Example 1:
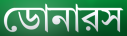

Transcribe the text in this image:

ডোনারস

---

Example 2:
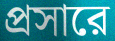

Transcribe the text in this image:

প্রসারে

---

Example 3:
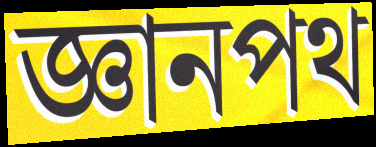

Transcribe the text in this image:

জ্ঞানপথ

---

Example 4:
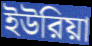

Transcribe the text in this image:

ইউরিয়া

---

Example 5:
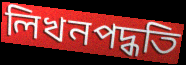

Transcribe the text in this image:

লিখনপদ্ধতি